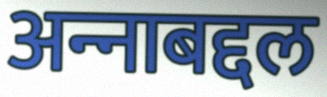
अन्‍नाबद्दल